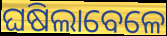
ଘଷିଲାବେଳେ